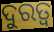
ଦୁରତ୍ଵ